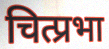
चित्प्रभा